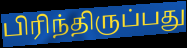
பிரிந்திருப்பது